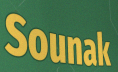
Sounak